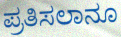
ಪ್ರತಿಸಲಾನೂ